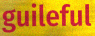
guileful